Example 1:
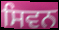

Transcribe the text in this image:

ਸਿਵਨ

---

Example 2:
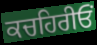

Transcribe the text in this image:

ਕਚਹਿਰੀਓਂ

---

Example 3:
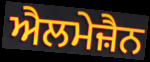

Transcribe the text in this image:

ਐਲਮੇਜ਼ੈਨ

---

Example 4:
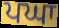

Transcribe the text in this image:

ਪਘਾ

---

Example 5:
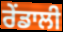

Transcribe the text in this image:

ਰੇਂਡਾਲੀ